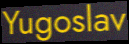
Yugoslav